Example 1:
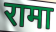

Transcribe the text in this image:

रामा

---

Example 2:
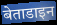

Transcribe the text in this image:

बेताडाइन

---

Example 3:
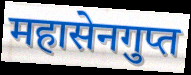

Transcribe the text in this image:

महासेनगुप्त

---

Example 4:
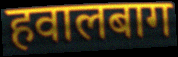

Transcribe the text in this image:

हवालबाग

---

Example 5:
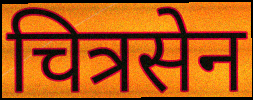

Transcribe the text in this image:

चित्रसेन